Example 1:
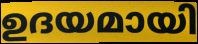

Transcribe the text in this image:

ഉദയമായി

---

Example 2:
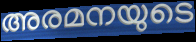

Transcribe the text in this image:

അരമനയുടെ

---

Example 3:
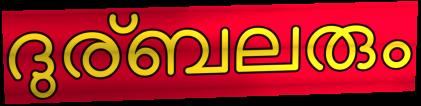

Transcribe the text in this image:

ദുര്ബലരും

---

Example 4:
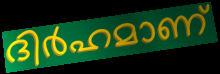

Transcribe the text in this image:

ദിർഹമാണ്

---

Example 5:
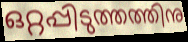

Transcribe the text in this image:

ഒറ്റപ്പിടുത്തത്തിനു